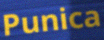
Punica